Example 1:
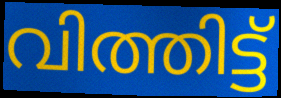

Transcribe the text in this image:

വിത്തിട്ട്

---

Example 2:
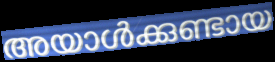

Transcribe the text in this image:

അയാൾക്കുണ്ടായ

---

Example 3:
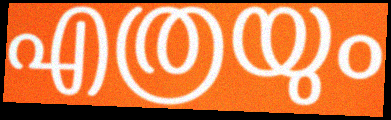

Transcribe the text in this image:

എത്രയും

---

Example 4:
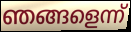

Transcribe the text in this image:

ഞങ്ങളെന്ന്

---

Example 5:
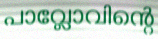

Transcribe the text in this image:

പാവ്ലോവിന്റെ